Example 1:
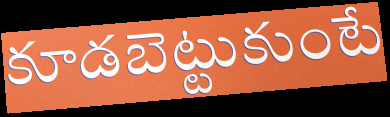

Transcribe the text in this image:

కూడబెట్టుకుంటే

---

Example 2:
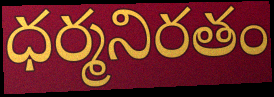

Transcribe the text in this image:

ధర్మనిరతం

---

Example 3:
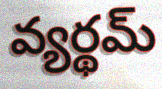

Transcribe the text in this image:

వ్యర్థమ్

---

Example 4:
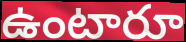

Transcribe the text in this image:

ఉంటారూ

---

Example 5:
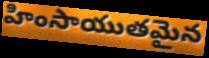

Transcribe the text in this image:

హింసాయుతమైన